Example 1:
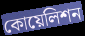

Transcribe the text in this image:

কোয়েলিশন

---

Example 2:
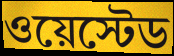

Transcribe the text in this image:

ওয়েস্টেড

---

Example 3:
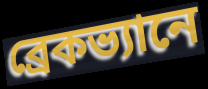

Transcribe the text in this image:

ব্রেকভ্যানে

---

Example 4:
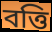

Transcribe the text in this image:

বত্তি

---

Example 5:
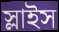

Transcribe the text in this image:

স্লাইস